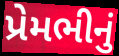
પ્રેમભીનું